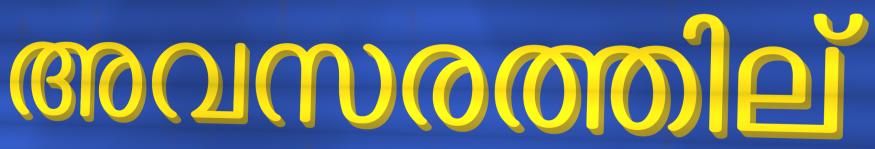
അവസരത്തില്